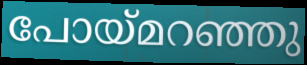
പോയ്മറഞ്ഞു